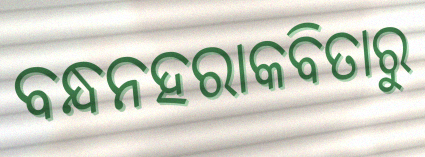
ବନ୍ଧନହରାକବିତାରୁ